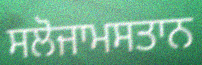
ਸਲੋਜਾਮਸਤਾਨ